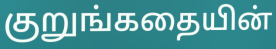
குறுங்கதையின்